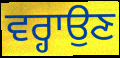
ਵਰ੍ਹਾਉਣ